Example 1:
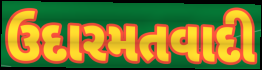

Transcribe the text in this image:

ઉદારમતવાદી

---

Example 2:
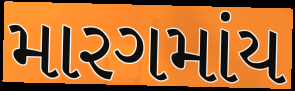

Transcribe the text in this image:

મારગમાંય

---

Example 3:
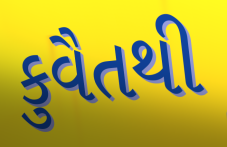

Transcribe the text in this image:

કુવૈતથી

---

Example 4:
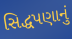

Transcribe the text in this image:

સિદ્ધપણાનું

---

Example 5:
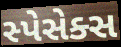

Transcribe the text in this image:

સ્પેસેક્સ